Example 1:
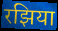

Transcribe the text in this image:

रझिया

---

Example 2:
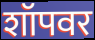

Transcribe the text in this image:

शॉपवर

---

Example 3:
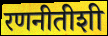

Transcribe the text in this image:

रणनीतीशी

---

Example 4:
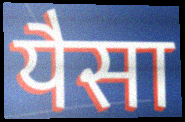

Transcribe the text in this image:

यैसा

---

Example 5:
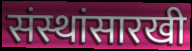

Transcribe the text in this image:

संस्थांसारखी